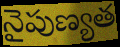
నైపుణ్యత